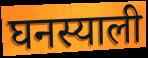
घनस्याली